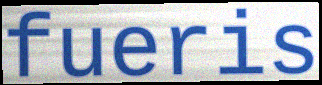
fueris